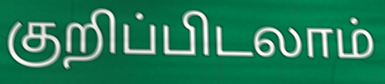
குறிப்பிடலாம்